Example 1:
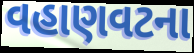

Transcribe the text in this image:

વહાણવટના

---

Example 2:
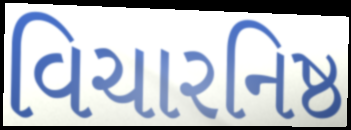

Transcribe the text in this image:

વિચારનિષ્ઠ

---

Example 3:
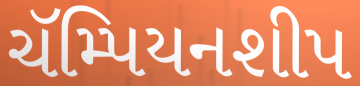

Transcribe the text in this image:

ચૅમ્પિયનશીપ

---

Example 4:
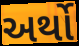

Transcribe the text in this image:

અર્થો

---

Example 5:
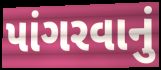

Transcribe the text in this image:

પાંગરવાનું